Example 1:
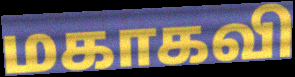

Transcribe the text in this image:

மகாகவி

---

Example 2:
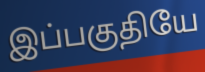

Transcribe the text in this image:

இப்பகுதியே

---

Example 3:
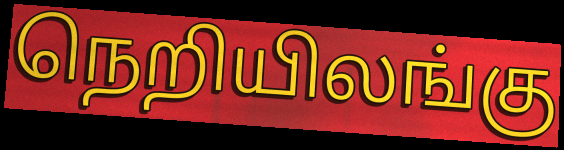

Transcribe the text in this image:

நெறியிலங்கு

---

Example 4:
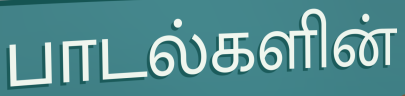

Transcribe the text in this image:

பாடல்களின்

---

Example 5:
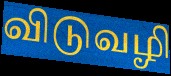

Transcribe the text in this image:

விடுவழி